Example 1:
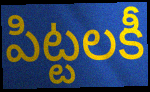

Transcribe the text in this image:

పిట్టలకీ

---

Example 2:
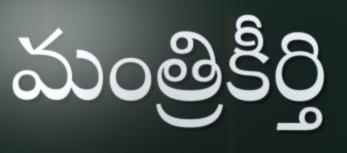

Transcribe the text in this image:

మంత్రికీర్తి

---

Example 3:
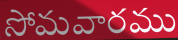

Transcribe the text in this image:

సోమవారము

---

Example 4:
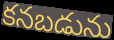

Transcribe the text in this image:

కనబడును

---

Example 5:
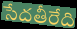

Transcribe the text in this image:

సేదతీరేది